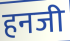
हनजी